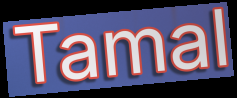
Tamal